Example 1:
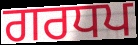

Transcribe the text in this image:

ਗਰਧਪ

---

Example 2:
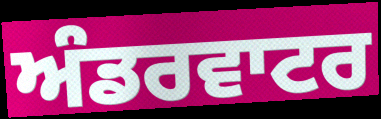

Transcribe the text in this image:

ਅੰਡਰਵਾਟਰ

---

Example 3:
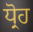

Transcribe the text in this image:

ਧ੍ਰੋਹ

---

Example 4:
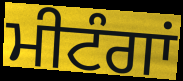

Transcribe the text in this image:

ਮੀਟੰਗਾਂ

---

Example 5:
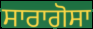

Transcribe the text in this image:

ਸਾਰਾਗੋਸਾ